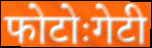
फोटोःगेटी